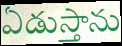
ఏడుస్తాను